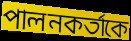
পালনকর্তাকে